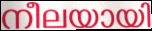
നീലയായി